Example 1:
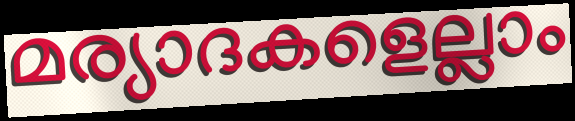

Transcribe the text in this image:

മര്യാദകളെല്ലാം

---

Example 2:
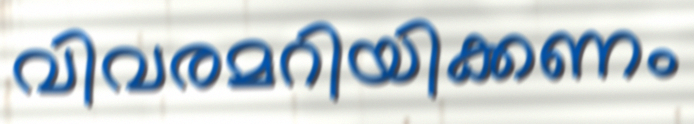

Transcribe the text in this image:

വിവരമറിയിക്കണം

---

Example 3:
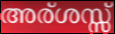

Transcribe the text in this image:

അര്ശസ്സ്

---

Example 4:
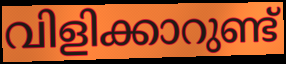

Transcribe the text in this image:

വിളിക്കാറുണ്ട്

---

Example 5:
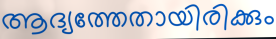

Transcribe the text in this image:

ആദ്യത്തേതായിരിക്കും